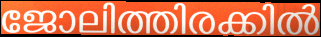
ജോലിത്തിരക്കിൽ